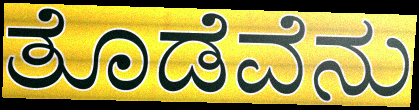
ತೊಡೆವೆನು